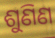
ଶୁଣିଣ